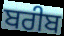
ਬਰੀਬ